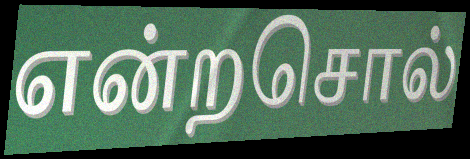
என்றசொல்